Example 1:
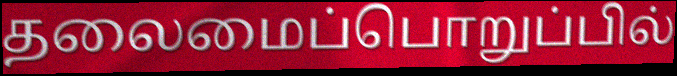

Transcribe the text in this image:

தலைமைப்பொறுப்பில்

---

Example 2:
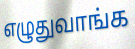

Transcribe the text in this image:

எழுதுவாங்க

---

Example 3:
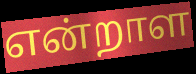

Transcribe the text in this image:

என்றாள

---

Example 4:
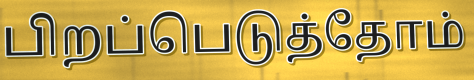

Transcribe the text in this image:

பிறப்பெடுத்தோம்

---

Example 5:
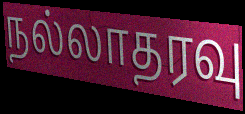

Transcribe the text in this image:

நல்லாதரவு